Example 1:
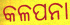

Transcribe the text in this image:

କଳପନା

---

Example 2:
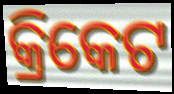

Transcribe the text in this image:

କ୍ରିକେଟ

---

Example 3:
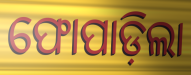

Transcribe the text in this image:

ଫୋପାଡ଼ିଲା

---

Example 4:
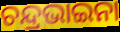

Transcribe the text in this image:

ଚନ୍ଦ୍ରଭାଇନା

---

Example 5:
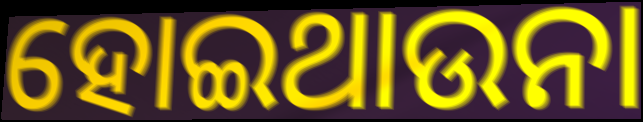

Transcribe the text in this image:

ହୋଇଥାଉନା